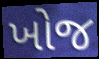
ખોજ